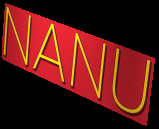
NANU